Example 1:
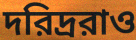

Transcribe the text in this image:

দরিদ্ররাও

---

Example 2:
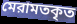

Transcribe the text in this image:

মেরামতকৃত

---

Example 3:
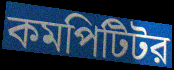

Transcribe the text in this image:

কমপিটিটর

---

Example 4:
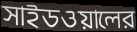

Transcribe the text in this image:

সাইডওয়ালের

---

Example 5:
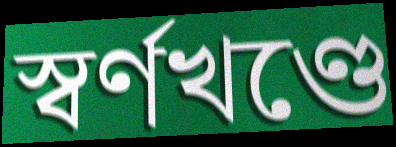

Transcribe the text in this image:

স্বর্ণখণ্ডে